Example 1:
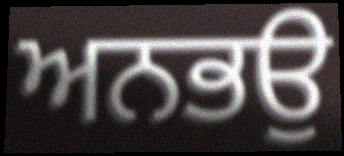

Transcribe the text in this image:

ਅਨਭਉ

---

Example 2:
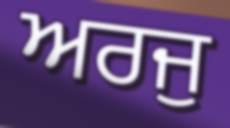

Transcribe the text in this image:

ਅਰਜੁ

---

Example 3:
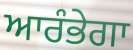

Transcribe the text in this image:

ਆਰੰਭੇਗਾ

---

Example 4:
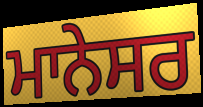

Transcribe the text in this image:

ਮਾਨੇਸਰ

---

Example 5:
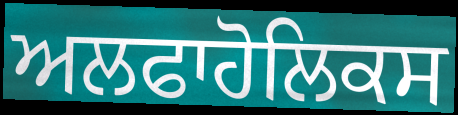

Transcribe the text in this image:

ਅਲਫਾਹੋਲਿਕਸ